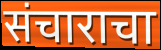
संचाराचा